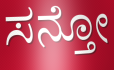
ಸನ್ತೋ